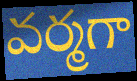
వర్మగా